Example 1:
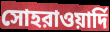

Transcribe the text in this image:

সোহরাওয়ার্দি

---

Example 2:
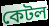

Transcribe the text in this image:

কেটল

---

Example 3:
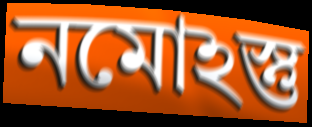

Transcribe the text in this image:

নমোঽস্তু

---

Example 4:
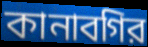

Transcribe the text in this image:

কানাবগির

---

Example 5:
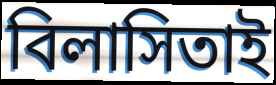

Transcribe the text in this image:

বিলাসিতাই